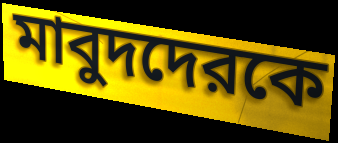
মাবুদদেরকে